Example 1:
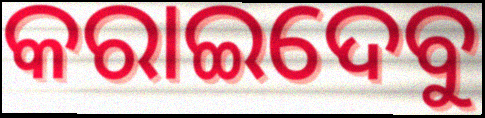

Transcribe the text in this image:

କରାଇଦେବୁ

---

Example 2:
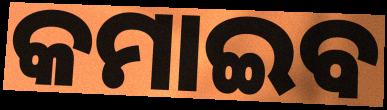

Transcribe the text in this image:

କମାଇବ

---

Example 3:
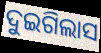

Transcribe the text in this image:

ଦୁଇଗିଲାସ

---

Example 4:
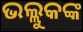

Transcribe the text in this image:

ଭଲ୍ଲୁକଙ୍କ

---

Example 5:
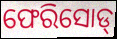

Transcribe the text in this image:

ଫେରିସୋଡ୍